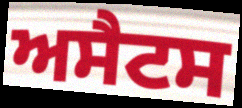
ਅਸੈਟਸ